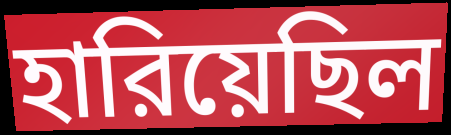
হারিয়েছিল